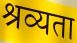
श्रव्यता